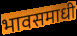
भावसमाधी